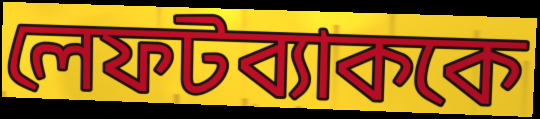
লেফটব্যাককে